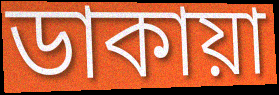
ডাকায়া